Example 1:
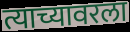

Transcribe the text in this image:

त्याच्यावरला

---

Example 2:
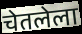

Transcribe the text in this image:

चेतलेला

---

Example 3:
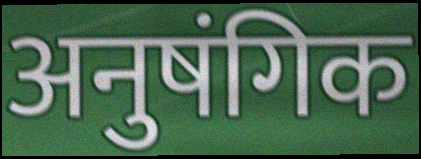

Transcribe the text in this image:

अनुषंगिक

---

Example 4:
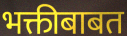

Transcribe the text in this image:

भक्तीबाबत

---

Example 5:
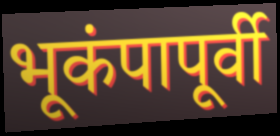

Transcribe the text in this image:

भूकंपापूर्वी